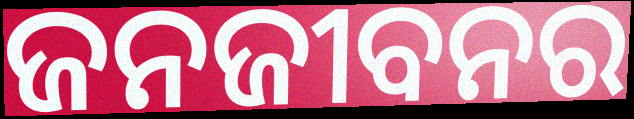
ଜନଜୀବନର